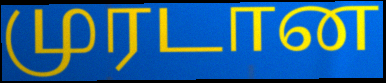
முரடான